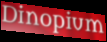
Dinopium